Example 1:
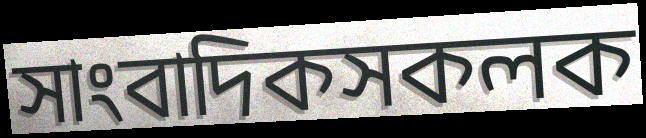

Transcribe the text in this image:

সাংবাদিকসকলক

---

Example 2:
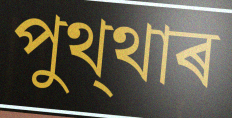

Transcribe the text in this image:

পুথ্থাৰ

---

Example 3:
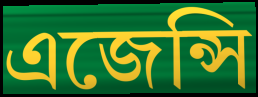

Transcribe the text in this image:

এজেন্সি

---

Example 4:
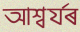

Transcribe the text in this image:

আশ্বৰ্যৰ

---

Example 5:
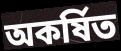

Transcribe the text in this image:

অকৰ্ষিত